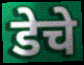
डेचे